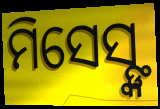
ମିସେସ୍ଙ୍କ